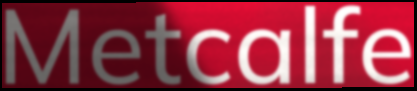
Metcalfe